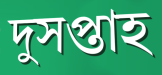
দুসপ্তাহ